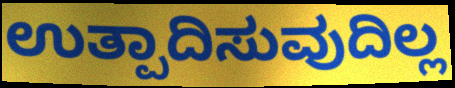
ಉತ್ಪಾದಿಸುವುದಿಲ್ಲ